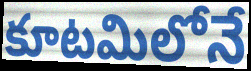
కూటమిలోనే